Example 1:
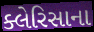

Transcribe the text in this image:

ક્લેરિસાના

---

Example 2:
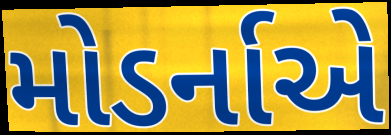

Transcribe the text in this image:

મોડર્નાએ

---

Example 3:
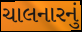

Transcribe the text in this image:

ચાલનારનું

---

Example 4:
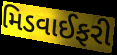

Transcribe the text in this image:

મિડવાઈફરી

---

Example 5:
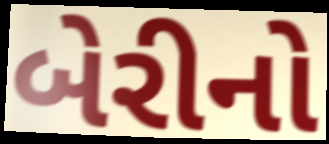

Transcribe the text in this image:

બેરીનો